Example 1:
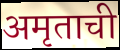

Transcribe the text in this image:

अमृताची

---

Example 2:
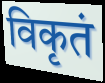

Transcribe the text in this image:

विकृतं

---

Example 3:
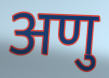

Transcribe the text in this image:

अणु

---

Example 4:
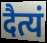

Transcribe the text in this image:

दैत्यं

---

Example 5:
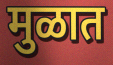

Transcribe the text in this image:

मुळात